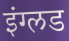
इंग्लड